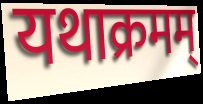
यथाक्रमम्